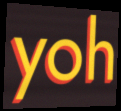
yoh